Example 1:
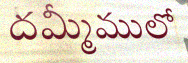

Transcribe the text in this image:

దమ్మీములో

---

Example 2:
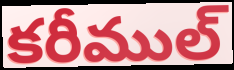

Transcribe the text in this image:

కరీముల్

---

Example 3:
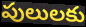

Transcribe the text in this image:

పులులకు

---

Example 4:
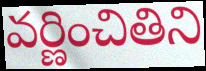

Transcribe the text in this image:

వర్ణించితిని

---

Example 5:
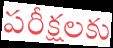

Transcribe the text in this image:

పరీక్షలకు